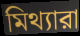
মিথ্যারা